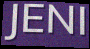
JENI